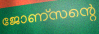
ജോണ്സന്റെ